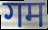
गम